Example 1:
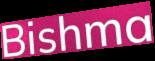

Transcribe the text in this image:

Bishma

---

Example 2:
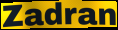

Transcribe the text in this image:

Zadran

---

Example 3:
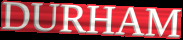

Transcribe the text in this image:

DURHAM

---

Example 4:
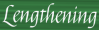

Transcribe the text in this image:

Lengthening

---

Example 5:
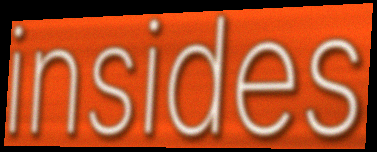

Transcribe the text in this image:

insides